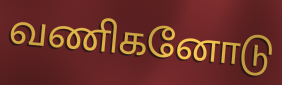
வணிகனோடு